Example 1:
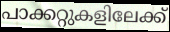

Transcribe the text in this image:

പാക്കറ്റുകളിലേക്ക്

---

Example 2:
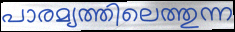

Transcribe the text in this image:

പാരമ്യത്തിലെത്തുന്ന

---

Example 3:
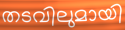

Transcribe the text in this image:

തടവിലുമായി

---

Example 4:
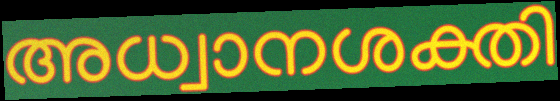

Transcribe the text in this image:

അധ്വാനശക്തി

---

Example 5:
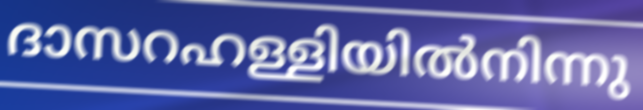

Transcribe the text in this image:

ദാസറഹള്ളിയിൽനിന്നു